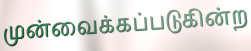
முன்வைக்கப்படுகின்ற